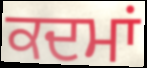
ਕਦਮਾਂ